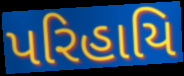
પરિહાયિ